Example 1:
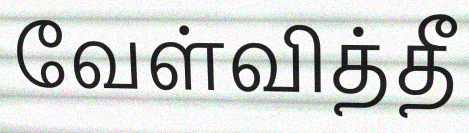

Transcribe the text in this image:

வேள்வித்தீ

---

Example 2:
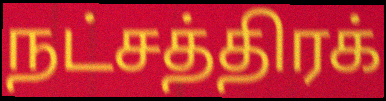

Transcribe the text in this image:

நட்சத்திரக்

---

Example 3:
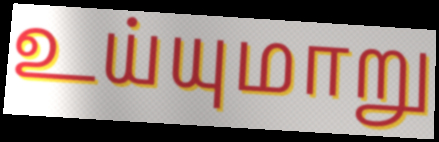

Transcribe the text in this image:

உய்யுமாறு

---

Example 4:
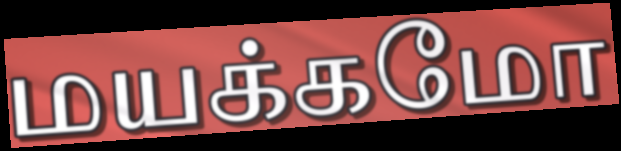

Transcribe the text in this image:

மயக்கமோ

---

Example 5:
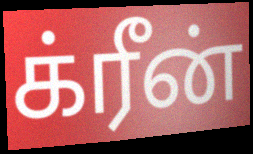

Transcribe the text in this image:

க்ரீன்